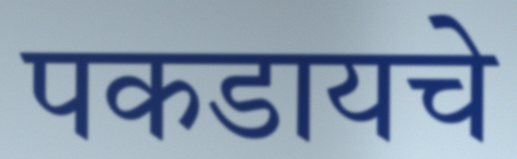
पकडायचे